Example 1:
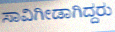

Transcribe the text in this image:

ಸಾವಿಗೀಡಾಗಿದ್ದರು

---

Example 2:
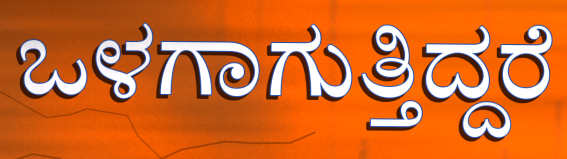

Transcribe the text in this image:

ಒಳಗಾಗುತ್ತಿದ್ದರೆ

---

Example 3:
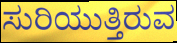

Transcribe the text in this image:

ಸುರಿಯುತ್ತಿರುವ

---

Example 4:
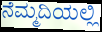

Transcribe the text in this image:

ನೆಮ್ಮದಿಯಲ್ಲಿ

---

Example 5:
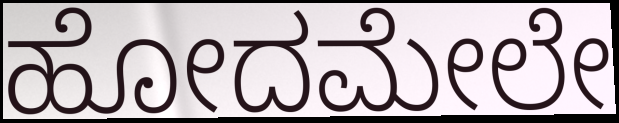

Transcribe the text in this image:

ಹೋದಮೇಲೇ